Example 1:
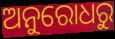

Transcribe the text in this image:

ଅନୁରୋଧରୁ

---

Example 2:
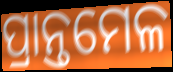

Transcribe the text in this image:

ପ୍ରାନ୍ତମେଳ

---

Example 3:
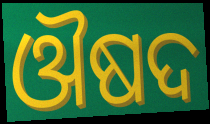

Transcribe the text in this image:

ଔଷଦ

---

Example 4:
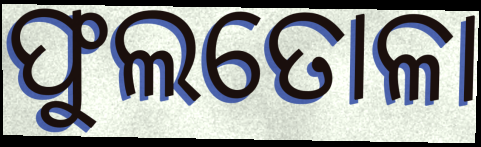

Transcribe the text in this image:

ଫୁଲତୋଳା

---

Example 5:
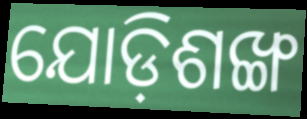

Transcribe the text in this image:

ଯୋଡ଼ିଶଙ୍ଖ